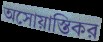
অসোয়াস্তিকর